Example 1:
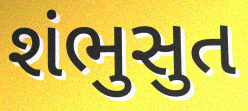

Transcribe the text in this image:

શંભુસુત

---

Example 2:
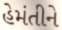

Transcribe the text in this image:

હેમંતીને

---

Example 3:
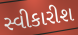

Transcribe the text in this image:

સ્વીકારીશ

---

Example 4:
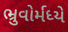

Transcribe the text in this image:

ભ્રુવોર્મધ્યે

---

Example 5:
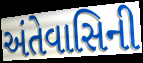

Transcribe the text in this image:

અંતેવાસિની